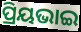
ପ୍ରିୟଭାଇ